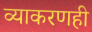
व्याकरणही